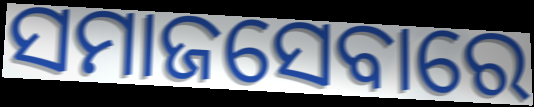
ସମାଜସେବାରେ